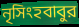
নৃসিংহবাবুর